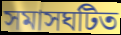
সমাসঘটিত